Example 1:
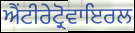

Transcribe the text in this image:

ਐਂਟੀਰੇਟ੍ਰੋਵਾਇਰਲ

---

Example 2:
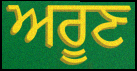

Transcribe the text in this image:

ਅਰੂਣ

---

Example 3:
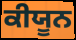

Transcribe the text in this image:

ਕੀਯੂਨ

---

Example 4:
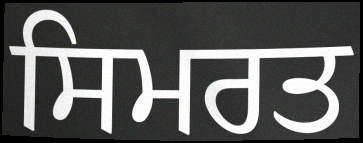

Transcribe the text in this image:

ਸਿਮਰਤ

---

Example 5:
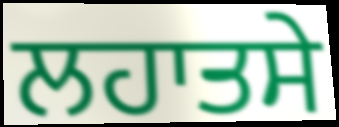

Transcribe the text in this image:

ਲਹਾਤਸੇ